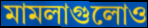
মামলাগুলোও